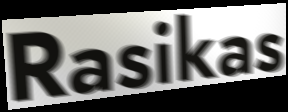
Rasikas